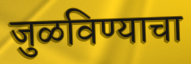
जुळविण्याचा